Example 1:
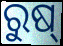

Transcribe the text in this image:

ରୁଷ୍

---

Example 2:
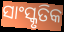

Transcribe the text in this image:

ସାଂସ୍କୃତିକ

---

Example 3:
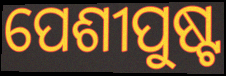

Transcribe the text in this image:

ପେଶୀପୁଷ୍ଟ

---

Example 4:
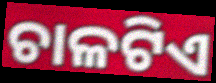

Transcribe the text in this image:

ଚାଳଟିଏ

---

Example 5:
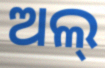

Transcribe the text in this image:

ଅଲ୍